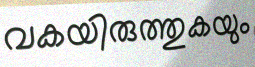
വകയിരുത്തുകയും